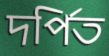
দর্পিত